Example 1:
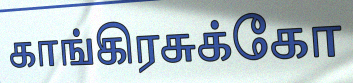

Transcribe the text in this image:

காங்கிரசுக்கோ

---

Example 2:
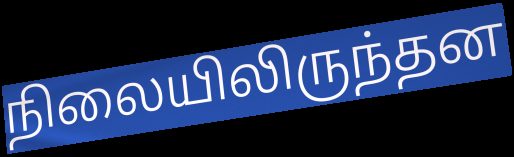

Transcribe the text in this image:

நிலையிலிருந்தன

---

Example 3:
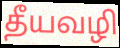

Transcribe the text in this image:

தீயவழி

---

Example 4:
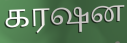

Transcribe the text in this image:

கரஷன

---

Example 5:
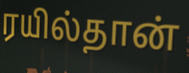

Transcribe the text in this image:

ரயில்தான்